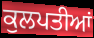
ਕੁਲਪਤੀਆਂ